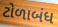
ટોળાબંધ